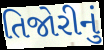
તિજોરીનું